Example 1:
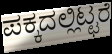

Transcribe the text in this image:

ಪಕ್ಕದಲ್ಲಿಟ್ಟರೆ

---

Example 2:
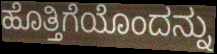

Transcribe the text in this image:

ಹೊತ್ತಿಗೆಯೊಂದನ್ನು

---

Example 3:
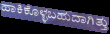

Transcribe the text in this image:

ಹಾಕಿಕೊಳ್ಳಬಹುದಾಗಿತ್ತು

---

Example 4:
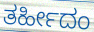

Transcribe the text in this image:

ತರ್ಹೀದಂ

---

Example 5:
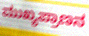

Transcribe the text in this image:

ಮುಖ್ಯಪ್ರಾಣನ